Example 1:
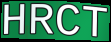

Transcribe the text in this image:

HRCT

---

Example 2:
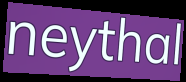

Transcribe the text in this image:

neythal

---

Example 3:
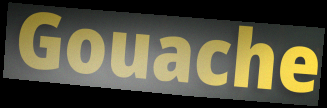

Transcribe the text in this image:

Gouache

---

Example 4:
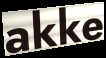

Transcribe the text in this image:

akke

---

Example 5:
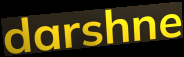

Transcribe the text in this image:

darshne